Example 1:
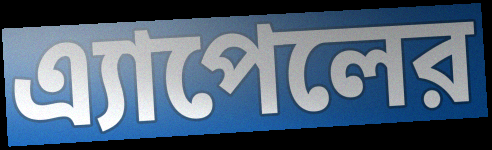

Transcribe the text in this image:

এ্যাপেলের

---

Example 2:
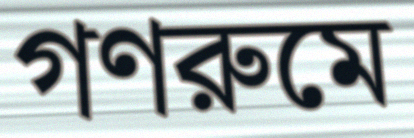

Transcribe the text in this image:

গণরুমে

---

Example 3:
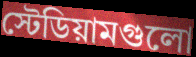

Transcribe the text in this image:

স্টেডিয়ামগুলো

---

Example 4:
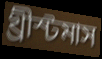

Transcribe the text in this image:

খ্রীস্টমাস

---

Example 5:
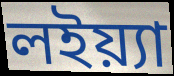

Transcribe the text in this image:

লইয়্যা